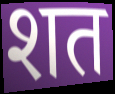
शत